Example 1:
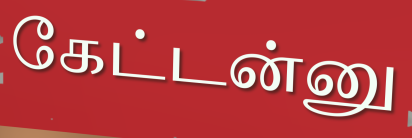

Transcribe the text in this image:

கேட்டன்னு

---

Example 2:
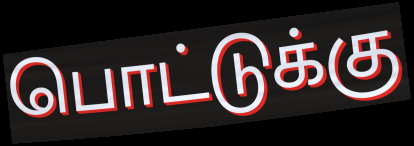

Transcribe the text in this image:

பொட்டுக்கு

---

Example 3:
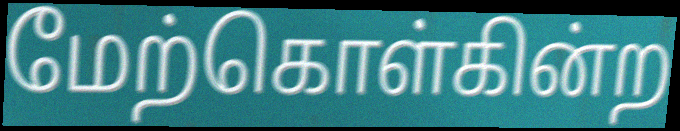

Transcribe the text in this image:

மேற்கொள்கின்ற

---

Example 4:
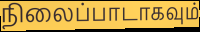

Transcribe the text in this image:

நிலைப்பாடாகவும்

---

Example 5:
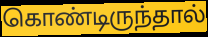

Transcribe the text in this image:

கொண்டிருந்தால்